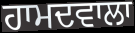
ਹਾਮਦਵਾਲਾ